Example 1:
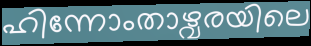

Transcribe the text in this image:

ഹിന്നോംതാഴ്വരയിലെ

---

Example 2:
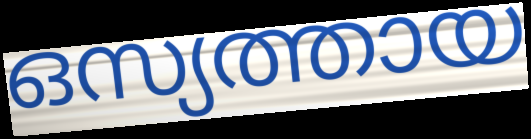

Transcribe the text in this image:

ഒസ്യത്തായ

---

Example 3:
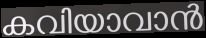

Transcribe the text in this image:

കവിയാവാൻ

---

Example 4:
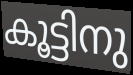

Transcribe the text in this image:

കൂട്ടിനു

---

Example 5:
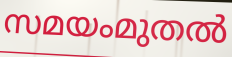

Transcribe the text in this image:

സമയംമുതൽ